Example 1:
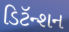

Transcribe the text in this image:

ડિટૅન્શન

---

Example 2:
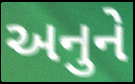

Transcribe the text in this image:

અનુને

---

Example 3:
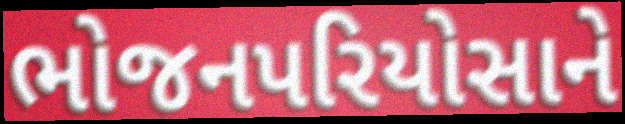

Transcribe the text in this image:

ભોજનપરિયોસાને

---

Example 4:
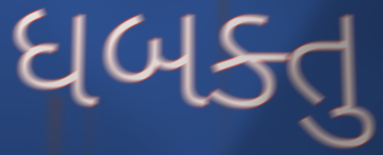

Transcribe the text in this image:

ધબક્તુ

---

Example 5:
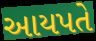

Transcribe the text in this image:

આયપતે